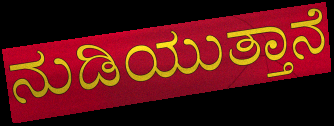
ನುಡಿಯುತ್ತಾನೆ